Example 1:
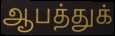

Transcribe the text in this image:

ஆபத்துக்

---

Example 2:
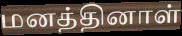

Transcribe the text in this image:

மனத்தினாள்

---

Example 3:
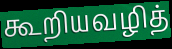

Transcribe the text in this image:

கூறியவழித்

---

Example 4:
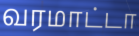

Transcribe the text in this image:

வரமாட்டா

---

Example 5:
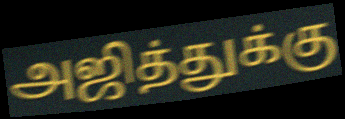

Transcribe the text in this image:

அஜித்துக்கு